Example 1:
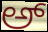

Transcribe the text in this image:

ಅ್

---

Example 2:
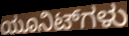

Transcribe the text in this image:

ಯೂನಿಟ್‌ಗಳು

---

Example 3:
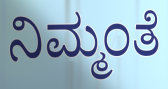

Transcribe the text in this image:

ನಿಮ್ಮಂತೆ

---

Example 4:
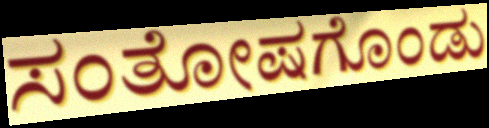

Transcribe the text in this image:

ಸಂತೋಷಗೊಂಡು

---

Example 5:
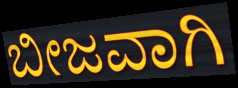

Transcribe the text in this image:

ಬೀಜವಾಗಿ